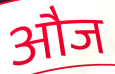
औज